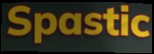
Spastic